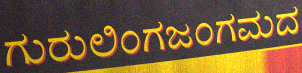
ಗುರುಲಿಂಗಜಂಗಮದ